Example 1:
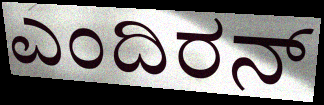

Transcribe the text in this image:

ಎಂದಿರನ್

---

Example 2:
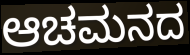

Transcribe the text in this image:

ಆಚಮನದ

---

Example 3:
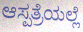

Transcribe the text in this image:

ಆಸ್ಪತ್ರೆಯಲ್ಲೆ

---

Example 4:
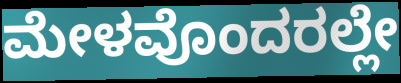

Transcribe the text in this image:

ಮೇಳವೊಂದರಲ್ಲೇ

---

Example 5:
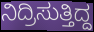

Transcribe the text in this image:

ನಿದ್ರಿಸುತ್ತಿದ್ದ